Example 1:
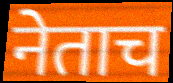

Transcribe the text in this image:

नेताच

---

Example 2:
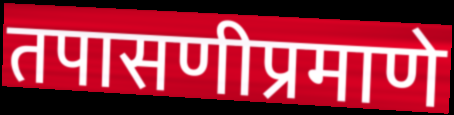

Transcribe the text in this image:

तपासणीप्रमाणे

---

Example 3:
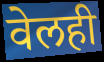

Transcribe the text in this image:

वेलही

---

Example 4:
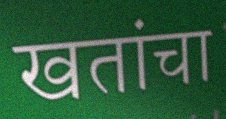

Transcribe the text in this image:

खतांचा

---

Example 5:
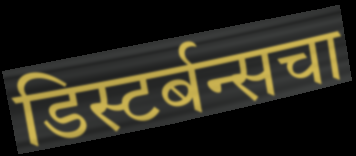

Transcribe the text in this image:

डिस्टर्बन्सचा